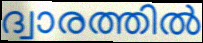
ദ്വാരത്തിൽ